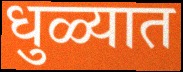
धुळ्यात